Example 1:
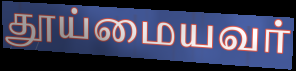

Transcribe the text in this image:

தூய்மையவர்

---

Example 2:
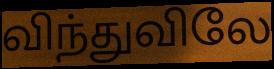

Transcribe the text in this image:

விந்துவிலே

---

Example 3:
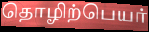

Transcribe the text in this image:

தொழிற்பெயர்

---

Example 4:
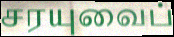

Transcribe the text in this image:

சரயுவைப்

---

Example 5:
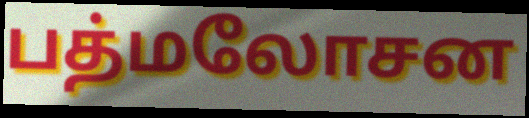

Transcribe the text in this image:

பத்மலோசன